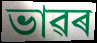
ভাৱৰ